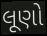
લૂણો